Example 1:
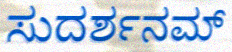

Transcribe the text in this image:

ಸುದರ್ಶನಮ್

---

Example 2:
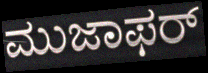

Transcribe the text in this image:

ಮುಜಾಫರ್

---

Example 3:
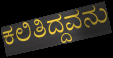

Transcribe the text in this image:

ಕಲಿತಿದ್ದವನು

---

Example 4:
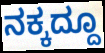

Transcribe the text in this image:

ನಕ್ಕದ್ದೂ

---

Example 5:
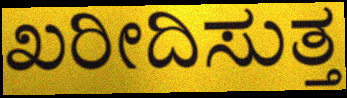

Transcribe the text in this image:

ಖರೀದಿಸುತ್ತ